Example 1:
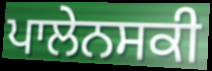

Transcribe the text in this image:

ਪਾਲੇਨਸਕੀ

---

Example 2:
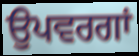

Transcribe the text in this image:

ਉਪਵਰਗਾਂ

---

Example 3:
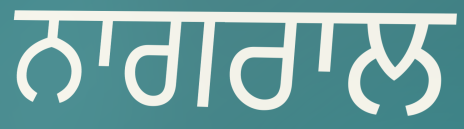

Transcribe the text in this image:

ਨਾਗਰਾਲ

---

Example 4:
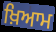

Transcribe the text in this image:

ਖ਼ਿਆਮ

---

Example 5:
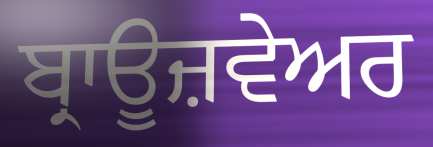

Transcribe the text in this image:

ਬ੍ਰਾਊਜ਼ਵੇਅਰ